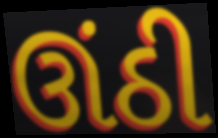
ઊંઠી